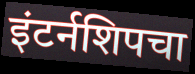
इंटर्नशिपचा